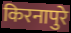
किरनापुरे